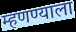
म्हणण्याला